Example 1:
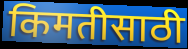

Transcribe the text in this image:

किमतीसाठी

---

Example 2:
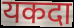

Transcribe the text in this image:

यकदा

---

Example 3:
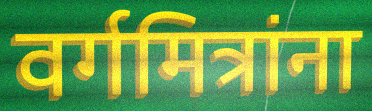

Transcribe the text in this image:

वर्गमित्रांना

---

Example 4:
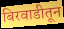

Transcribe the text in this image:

बिरवाडीतून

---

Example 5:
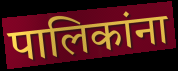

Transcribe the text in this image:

पालिकांना